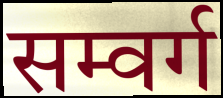
सम्वर्ग